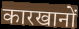
कारखानों